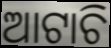
ଆଟାଚି